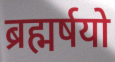
ब्रह्मर्षयो